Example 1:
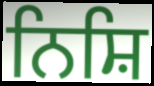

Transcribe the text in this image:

ਨਿਸ਼ਿ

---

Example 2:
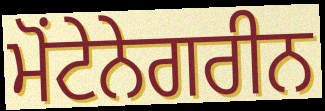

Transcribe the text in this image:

ਮੋਂਟੇਨੇਗਰੀਨ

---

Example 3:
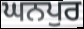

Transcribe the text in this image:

ਘਨਪੁਰ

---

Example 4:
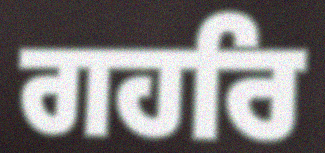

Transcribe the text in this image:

ਗਹਰਿ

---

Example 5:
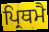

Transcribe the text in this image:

ਪ੍ਰਿਥਮੈ